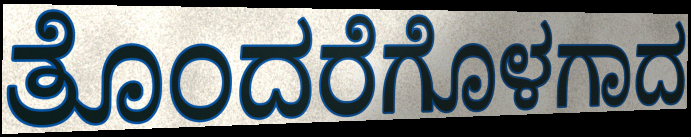
ತೊಂದರೆಗೊಳಗಾದ